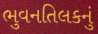
ભુવનતિલકનું